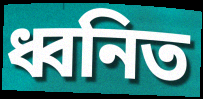
ধ্বনিত